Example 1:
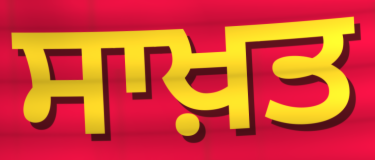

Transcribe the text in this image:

ਸਾਖ਼ਤ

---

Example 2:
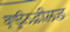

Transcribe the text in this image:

ਬ੍ਰਾਊਨਫ਼ੀਲਡ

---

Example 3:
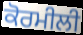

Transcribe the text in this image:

ਕੋਰਮੀਲੀ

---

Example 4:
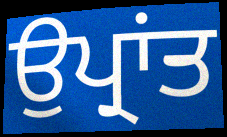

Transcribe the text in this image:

ਉਪ੍ਰਾਂਤ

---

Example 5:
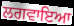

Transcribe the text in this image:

ਲਗਵਾਇਆ